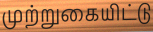
முற்றுகையிட்டு